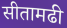
सीतामढी